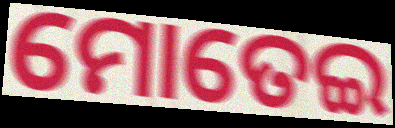
ମୋତେଇ